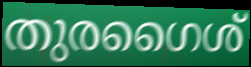
തുരഗൈശ്